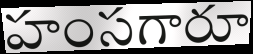
హంసగారూ